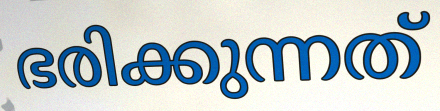
ഭരിക്കുന്നത്